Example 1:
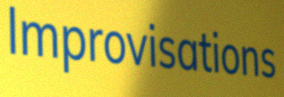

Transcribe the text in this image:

Improvisations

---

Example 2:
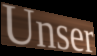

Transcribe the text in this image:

Unser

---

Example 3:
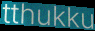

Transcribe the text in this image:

tthukku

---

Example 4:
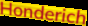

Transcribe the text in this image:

Honderich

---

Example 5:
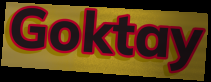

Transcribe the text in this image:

Goktay